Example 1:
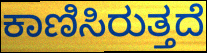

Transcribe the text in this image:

ಕಾಣಿಸಿರುತ್ತದೆ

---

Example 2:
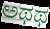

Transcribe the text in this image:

ಅಥಥ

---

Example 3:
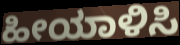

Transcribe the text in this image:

ಹೀಯಾಳಿಸಿ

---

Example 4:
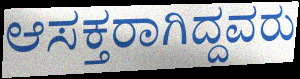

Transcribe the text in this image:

ಆಸಕ್ತರಾಗಿದ್ದವರು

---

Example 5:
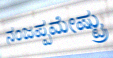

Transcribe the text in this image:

ನಂಜಪ್ಪಮೇಷ್ಟ್ರು